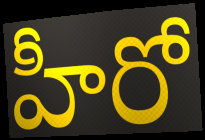
హీరో